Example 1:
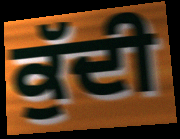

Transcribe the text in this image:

ਕੁੱਦੀ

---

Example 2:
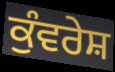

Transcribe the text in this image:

ਕੁੰਵਰੇਸ਼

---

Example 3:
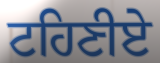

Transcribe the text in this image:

ਟਹਿਣੀਏ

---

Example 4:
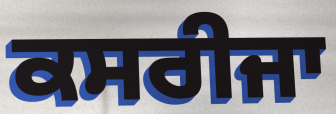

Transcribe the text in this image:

ਕਸਰੀਜਾ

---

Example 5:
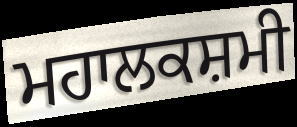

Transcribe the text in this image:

ਮਹਾਲਕਸ਼ਮੀ